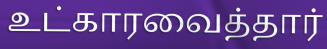
உட்காரவைத்தார்